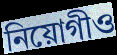
নিয়োগীও